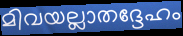
മിവയല്ലാതദ്ദേഹം